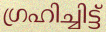
ഗ്രഹിച്ചിട്ട്